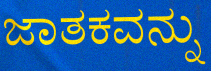
ಜಾತಕವನ್ನು